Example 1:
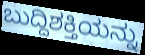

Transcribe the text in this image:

ಬುದ್ದಿಶಕ್ತಿಯನ್ನು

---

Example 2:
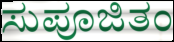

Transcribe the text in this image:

ಸುಪೂಜಿತಂ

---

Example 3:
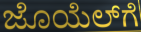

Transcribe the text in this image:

ಜೊಯೆಲ್‌ಗೆ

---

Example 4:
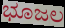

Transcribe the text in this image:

ಭೂಜಲ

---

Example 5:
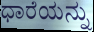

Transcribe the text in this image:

ಧಾರೆಯನ್ನು